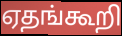
ஏதங்கூறி